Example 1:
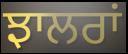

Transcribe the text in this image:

ਝਾਲਰਾਂ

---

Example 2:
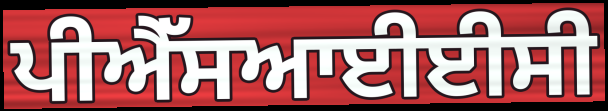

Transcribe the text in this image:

ਪੀਐੱਸਆਈਈਸੀ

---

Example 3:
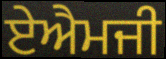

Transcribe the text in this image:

ਏਐਮਜੀ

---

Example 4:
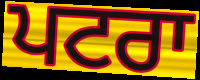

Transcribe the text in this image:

ਪਟਰਾ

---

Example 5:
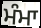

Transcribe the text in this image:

ਮੰਮਾ